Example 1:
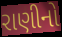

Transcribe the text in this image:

રાણીનો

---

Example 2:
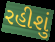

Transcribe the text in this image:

રહીશું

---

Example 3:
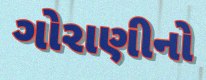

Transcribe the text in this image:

ગોરાણીનો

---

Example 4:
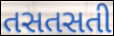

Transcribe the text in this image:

તસતસતી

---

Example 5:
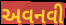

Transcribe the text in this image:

અવનવી